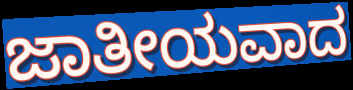
ಜಾತೀಯವಾದ